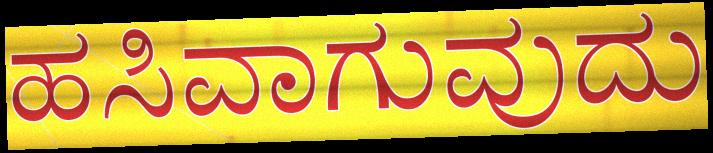
ಹಸಿವಾಗುವುದು